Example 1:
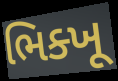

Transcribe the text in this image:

ભિક્ખૂ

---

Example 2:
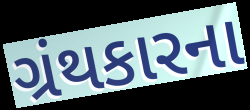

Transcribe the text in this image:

ગ્રંથકારના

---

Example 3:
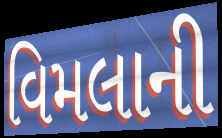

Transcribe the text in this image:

વિમલાની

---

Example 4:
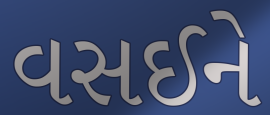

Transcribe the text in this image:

વસઈને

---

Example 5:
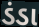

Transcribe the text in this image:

ડંડા